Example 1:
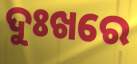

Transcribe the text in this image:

ଦୁଃଖରେ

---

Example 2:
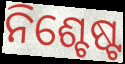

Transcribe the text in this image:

ନିଶ୍ଚେଷ୍ଟ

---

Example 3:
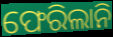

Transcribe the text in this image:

ଫେରିଲାନି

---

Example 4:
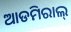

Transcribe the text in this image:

ଆଡମିରାଲ୍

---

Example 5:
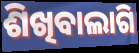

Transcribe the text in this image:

ଶିଖିବାଲାଗି